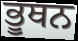
ਭੂਥਨ